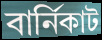
বার্নিকাট